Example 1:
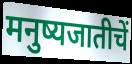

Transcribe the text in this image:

मनुष्यजातीचें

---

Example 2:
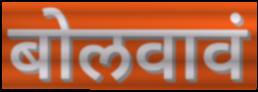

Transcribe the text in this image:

बोलवावं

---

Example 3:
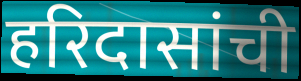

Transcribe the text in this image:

हरिदासांची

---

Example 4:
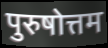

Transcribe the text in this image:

पुरुषोत्तम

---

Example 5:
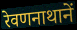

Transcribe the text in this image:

रेवणनाथानें